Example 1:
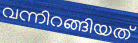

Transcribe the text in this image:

വന്നിറങ്ങിയത്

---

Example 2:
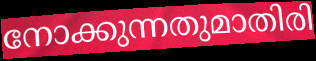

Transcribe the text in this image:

നോക്കുന്നതുമാതിരി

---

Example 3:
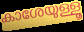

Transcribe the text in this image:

കാശേയുള്ളൂ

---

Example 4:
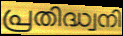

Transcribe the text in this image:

പ്രതിദ്ധ്വനി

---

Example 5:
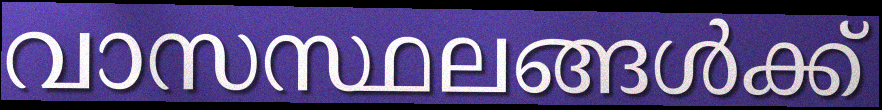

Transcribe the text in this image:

വാസസ്ഥലങ്ങൾക്ക്